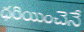
ధరియించెనే